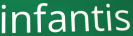
infantis